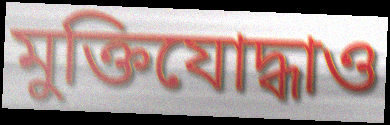
মুক্তিযোদ্ধাও